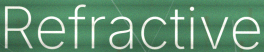
Refractive